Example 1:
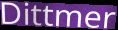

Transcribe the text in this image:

Dittmer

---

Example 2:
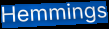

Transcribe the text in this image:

Hemmings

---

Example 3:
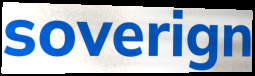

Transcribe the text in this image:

soverign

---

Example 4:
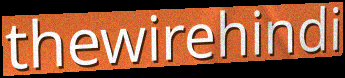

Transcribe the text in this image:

thewirehindi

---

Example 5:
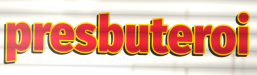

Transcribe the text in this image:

presbuteroi